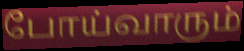
போய்வாரும்